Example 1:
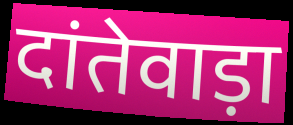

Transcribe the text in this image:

दांतेवाड़ा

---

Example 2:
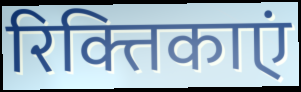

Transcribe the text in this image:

रिक्तिकाएं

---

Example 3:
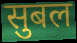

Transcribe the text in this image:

सुबल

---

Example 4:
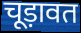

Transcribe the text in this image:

चूड़ावत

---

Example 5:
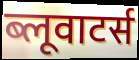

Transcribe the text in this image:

ब्लूवाटर्स